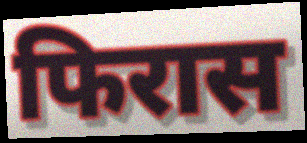
फिरास